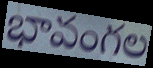
భావంగల